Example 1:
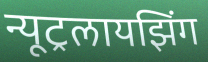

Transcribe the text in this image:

न्यूट्रलायझिंग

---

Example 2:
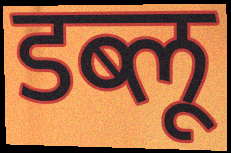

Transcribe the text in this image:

डब्लू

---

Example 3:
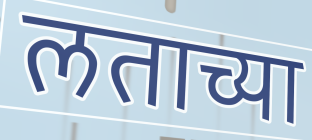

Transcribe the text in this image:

लताच्या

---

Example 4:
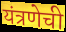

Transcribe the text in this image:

यंत्रणेची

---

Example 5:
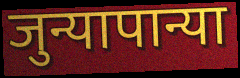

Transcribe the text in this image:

जुन्यापान्या